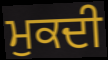
ਮੁਕਦੀ